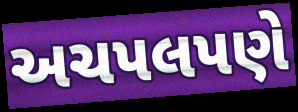
અચપલપણે